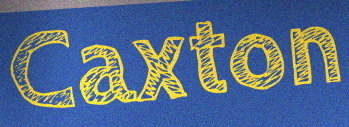
Caxton